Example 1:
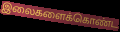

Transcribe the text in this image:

இலைகளைக்கொண்ட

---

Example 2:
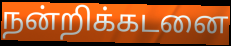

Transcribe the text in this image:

நன்றிக்கடனை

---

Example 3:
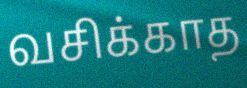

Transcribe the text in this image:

வசிக்காத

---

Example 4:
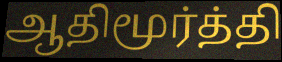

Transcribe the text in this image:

ஆதிமூர்த்தி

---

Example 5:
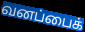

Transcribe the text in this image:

வனப்பைக்